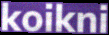
koikni